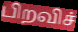
பிறவிச்